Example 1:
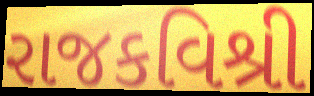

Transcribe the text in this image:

રાજકવિશ્રી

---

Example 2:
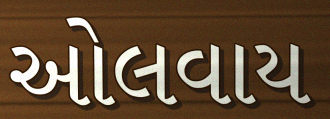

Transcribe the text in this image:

ઓલવાય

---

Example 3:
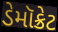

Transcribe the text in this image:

ડેમૉક્રેટ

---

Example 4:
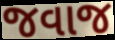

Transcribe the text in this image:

જવાજ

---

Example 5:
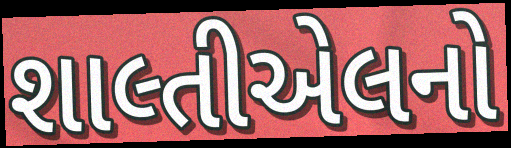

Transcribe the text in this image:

શાલ્તીએલનો